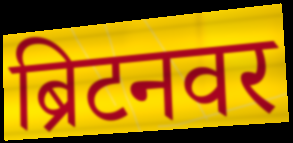
ब्रिटनवर